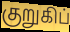
குறுகிப்